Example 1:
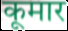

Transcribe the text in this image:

कूमार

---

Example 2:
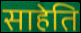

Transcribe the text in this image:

साहेति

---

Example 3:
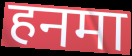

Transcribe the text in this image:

हनमा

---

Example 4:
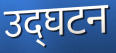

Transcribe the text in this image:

उद्घटन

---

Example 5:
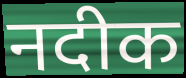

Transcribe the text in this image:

नदीक